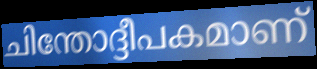
ചിന്തോദ്ദീപകമാണ്